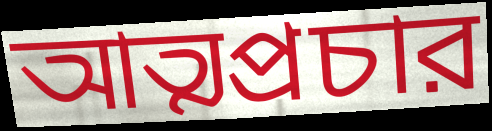
আত্মপ্রচার